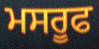
ਮਸਰੂਫ